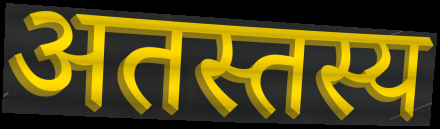
अतस्तस्य